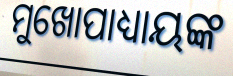
ମୁଖୋପାଧ୍ୟାୟଙ୍କ